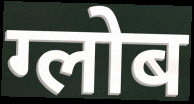
ग्लोब